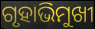
ଗୃହାଭିମୁଖୀ